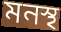
মনস্থ